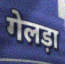
गेलड़ा